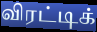
விரட்டிக்